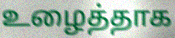
உழைத்தாக